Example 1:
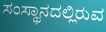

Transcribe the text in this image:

ಸಂಸ್ಥಾನದಲ್ಲಿರುವ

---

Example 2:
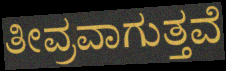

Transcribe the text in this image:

ತೀವ್ರವಾಗುತ್ತವೆ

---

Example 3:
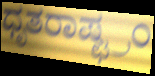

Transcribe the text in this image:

ಧೃತರಾಷ್ಟ್ರಂ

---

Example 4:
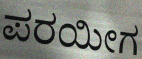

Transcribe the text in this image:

ಪರಯೀಗ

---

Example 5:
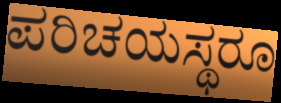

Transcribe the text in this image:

ಪರಿಚಯಸ್ಥರೂ